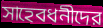
সাহেবধনীদের